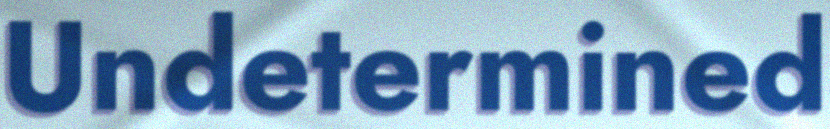
Undetermined